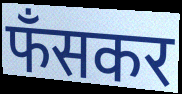
फँसकर